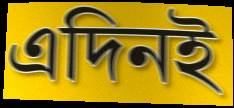
এদিনই